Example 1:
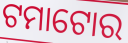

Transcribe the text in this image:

ଟମାଟୋର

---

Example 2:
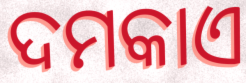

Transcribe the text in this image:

ଦମକାଏ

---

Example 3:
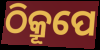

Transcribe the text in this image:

ଠିକ୍ରୂପେ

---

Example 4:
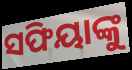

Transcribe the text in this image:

ସଫିୟାଙ୍କୁ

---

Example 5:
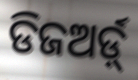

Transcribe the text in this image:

ଡିଜଅର୍ଡ଼୍